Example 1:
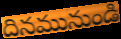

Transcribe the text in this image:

దినమునుండి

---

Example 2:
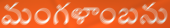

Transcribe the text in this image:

మంగళాంబను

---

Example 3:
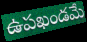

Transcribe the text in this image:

ఉపఖండమే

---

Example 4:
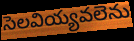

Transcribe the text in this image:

సెలవియ్యవలెను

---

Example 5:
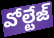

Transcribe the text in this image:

వోల్టేజ్